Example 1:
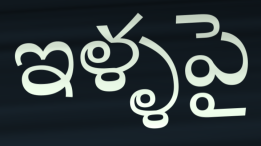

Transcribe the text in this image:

ఇళ్ళపై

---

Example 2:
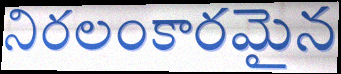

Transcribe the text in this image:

నిరలంకారమైన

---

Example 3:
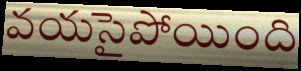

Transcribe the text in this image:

వయసైపోయింది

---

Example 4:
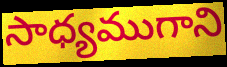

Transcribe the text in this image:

సాధ్యముగాని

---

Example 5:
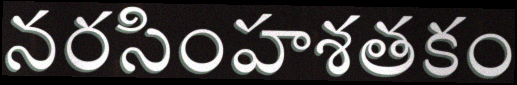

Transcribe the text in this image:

నరసింహశతకం